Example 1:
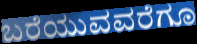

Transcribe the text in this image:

ಬರೆಯುವವರೆಗೂ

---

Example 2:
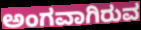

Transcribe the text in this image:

ಅಂಗವಾಗಿರುವ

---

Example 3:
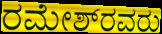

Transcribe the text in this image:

ರಮೇಶ್‌ರವರು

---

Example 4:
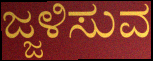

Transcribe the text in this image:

ಜ್ಜಳಿಸುವ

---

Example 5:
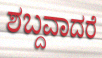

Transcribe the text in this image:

ಶಬ್ದವಾದರೆ